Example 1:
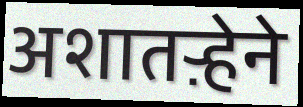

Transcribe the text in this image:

अशातऱ्‍हेने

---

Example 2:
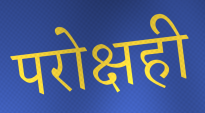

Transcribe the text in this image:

परोक्षही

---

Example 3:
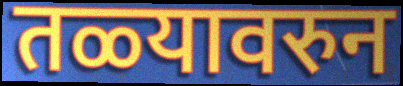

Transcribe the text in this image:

तळ्यावरुन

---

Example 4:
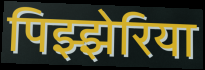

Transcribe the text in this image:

पिझ्झेरिया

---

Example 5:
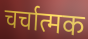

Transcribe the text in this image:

चर्चात्मक